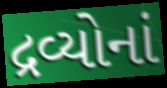
દ્રવ્યોનાં